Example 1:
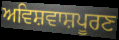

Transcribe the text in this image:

ਅਵਿਸ਼ਵਾਸ਼ਪੂਰਣ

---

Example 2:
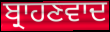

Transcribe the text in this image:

ਬ੍ਰਾਹਣਵਾਦ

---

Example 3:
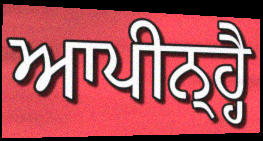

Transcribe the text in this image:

ਆਪੀਨ੍ਹ੍ਹੈ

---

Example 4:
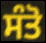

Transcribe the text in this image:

ਸੰਤੋ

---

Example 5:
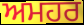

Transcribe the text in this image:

ਅਮਹਰ